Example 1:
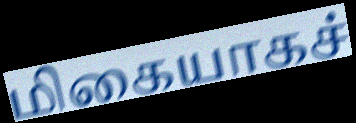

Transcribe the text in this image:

மிகையாகச்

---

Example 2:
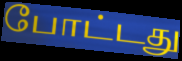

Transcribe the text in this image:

போட்டது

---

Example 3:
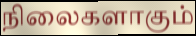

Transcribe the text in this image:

நிலைகளாகும்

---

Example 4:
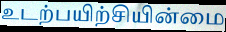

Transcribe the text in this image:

உடற்பயிற்சியின்மை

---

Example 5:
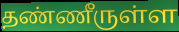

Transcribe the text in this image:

தண்ணீருள்ள